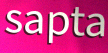
sapta